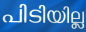
പിടിയില്ല